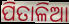
ପିତାଳିଆ